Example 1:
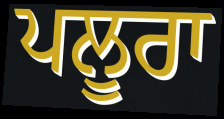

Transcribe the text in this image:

ਪਲੂਰਾ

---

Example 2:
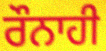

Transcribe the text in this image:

ਰੌਨਾਹੀ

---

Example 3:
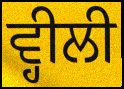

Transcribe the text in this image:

ਵ੍ਹੀਲੀ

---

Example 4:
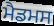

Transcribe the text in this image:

ਮੈਡਮਸ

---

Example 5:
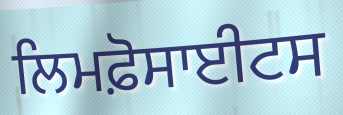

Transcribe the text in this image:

ਲਿਮਫ਼ੋਸਾਈਟਸ